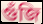
গুঁজি